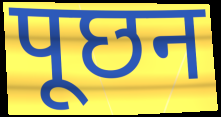
पूछन